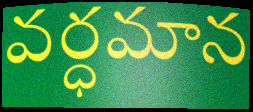
వర్ధమాన